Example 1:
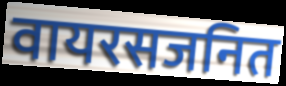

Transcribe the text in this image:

वायरसजनित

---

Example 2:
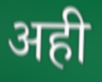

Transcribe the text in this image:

अही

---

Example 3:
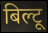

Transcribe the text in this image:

बिल्टू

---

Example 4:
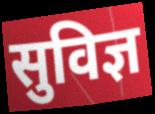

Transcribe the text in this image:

सुविज्ञ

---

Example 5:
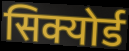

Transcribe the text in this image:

सिक्योर्ड